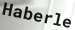
Haberle